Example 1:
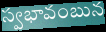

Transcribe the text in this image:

స్వభావంబున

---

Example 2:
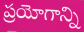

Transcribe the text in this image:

ప్రయోగాన్ని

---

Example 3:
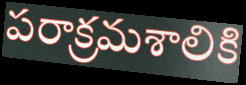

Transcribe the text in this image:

పరాక్రమశాలికి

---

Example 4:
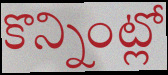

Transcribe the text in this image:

కొన్నింట్లో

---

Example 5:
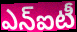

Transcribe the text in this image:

ఎన్ఐటీ